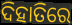
ଦିହାତିରେ